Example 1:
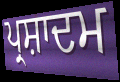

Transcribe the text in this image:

ਪ੍ਰਸ਼ਾਦਮ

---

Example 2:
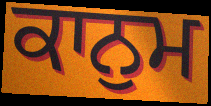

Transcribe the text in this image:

ਕਾਨੁਮ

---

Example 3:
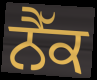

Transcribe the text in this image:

ਨੈੱਕ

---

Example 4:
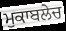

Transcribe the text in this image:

ਮੁਕਾਬਲੇਚ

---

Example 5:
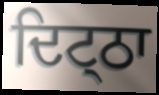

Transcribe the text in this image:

ਦਿਟ੍ਠਾ